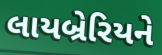
લાયબ્રેરિયને